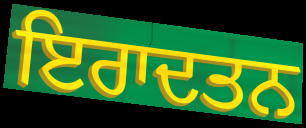
ਇਰਾਦਤਨ